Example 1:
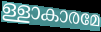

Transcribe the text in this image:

ള്ളാകാരമേ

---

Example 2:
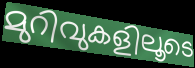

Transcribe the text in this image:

മുറിവുകളിലൂടെ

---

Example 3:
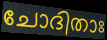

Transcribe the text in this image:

ചോദിതാഃ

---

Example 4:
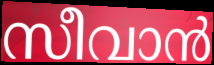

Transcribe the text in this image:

സീവാൻ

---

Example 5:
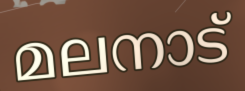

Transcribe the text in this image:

മലനാട്